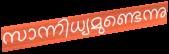
സാന്നിധ്യമുണ്ടെന്നു